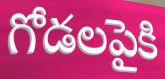
గోడలపైకి